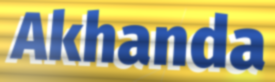
Akhanda